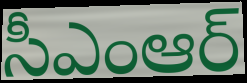
సీఎంఆర్